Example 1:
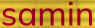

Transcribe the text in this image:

samin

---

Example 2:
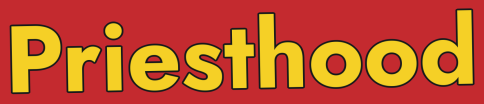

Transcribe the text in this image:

Priesthood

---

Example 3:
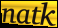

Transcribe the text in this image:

natk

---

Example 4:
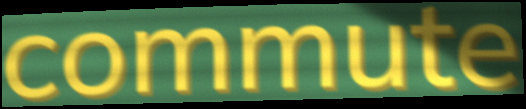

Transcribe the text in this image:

commute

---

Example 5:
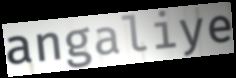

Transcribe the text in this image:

angaliye